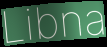
Libna